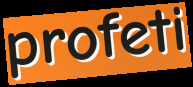
profeti